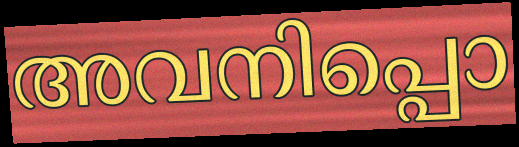
അവനിപ്പൊ